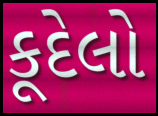
કૂદેલો